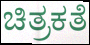
ಚಿತ್ರಕತೆ